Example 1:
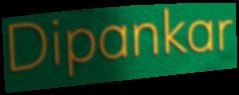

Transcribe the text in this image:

Dipankar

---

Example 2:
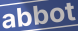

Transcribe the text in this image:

abbot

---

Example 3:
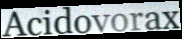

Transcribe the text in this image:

Acidovorax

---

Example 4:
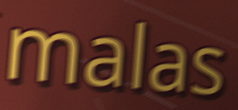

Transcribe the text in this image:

malas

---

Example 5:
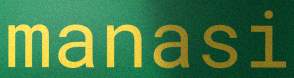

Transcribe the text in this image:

manasi